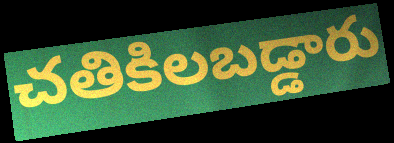
చతికిలబడ్డారు